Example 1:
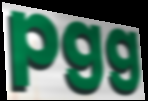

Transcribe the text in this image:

pgg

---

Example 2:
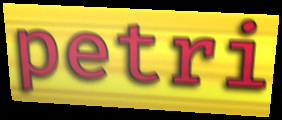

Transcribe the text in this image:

petri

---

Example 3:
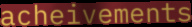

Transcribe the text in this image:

acheivements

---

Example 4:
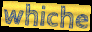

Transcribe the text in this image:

whiche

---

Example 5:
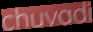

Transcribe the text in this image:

chuvadi